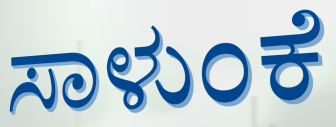
ಸಾಳುಂಕೆ